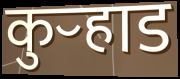
कुऱ्हाड